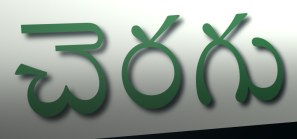
చెరగు